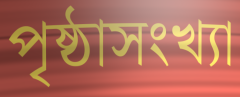
পৃষ্ঠাসংখ্যা